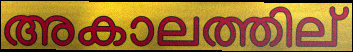
അകാലത്തില്